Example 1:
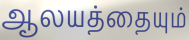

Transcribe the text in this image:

ஆலயத்தையும்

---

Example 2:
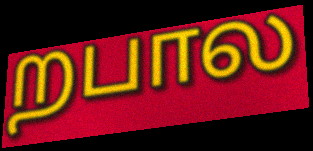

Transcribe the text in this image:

றபால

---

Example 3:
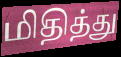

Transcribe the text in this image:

மிதித்து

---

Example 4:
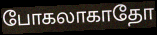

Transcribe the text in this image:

போகலாகாதோ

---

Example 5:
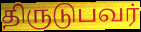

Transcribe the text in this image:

திருடுபவர்